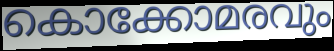
കൊക്കോമരവും